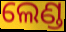
ଲେଣ୍ଡ